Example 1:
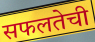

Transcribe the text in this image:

सफलतेची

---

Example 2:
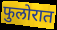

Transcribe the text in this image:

फुलोरात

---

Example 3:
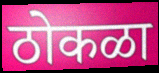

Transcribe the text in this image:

ठोकळा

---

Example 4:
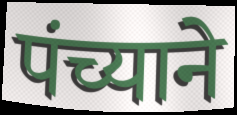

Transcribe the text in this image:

पंच्याने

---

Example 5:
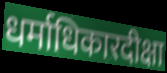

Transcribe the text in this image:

धर्माधिकारदीक्षा